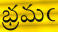
భ్రమఁ